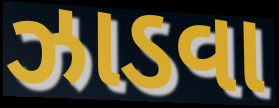
ઝાડવા